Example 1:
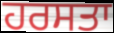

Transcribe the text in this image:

ਹਰਸਤਾ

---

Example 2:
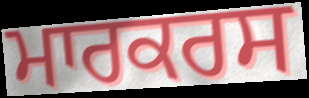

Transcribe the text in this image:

ਮਾਰਕਰਸ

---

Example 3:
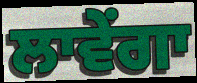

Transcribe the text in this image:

ਲਾਵੇਂਗਾ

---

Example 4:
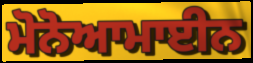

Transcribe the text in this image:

ਮੋਨੋਆਮਾਈਨ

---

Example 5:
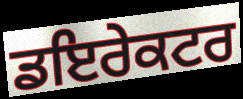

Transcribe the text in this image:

ਡਇਰੇਕਟਰ